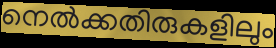
നെൽക്കതിരുകളിലും